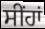
ਸੀਂਹਾਂ